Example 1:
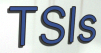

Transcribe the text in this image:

TSIs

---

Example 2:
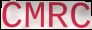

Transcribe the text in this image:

CMRC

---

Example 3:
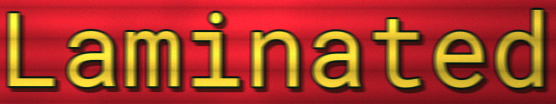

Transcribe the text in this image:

Laminated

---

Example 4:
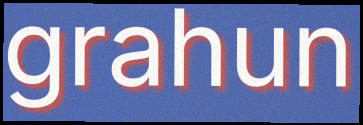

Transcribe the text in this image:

grahun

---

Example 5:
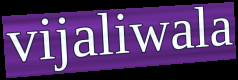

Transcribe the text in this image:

vijaliwala